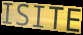
ISITE